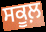
ਸਕੂਲ਼